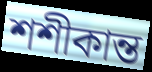
শশীকান্ত